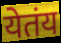
येतंय